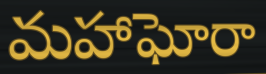
మహాఘోరా